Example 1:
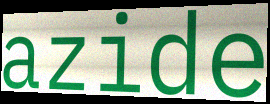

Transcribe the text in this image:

azide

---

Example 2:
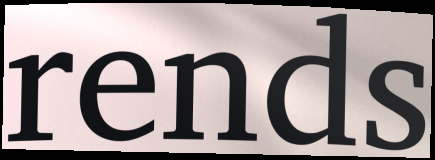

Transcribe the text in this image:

rends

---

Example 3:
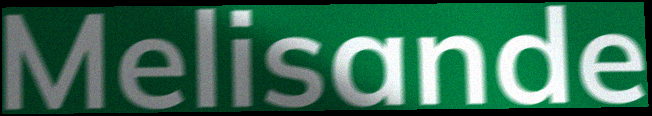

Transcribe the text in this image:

Melisande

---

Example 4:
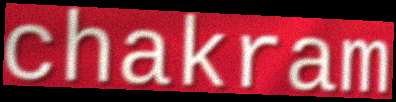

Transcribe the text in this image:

chakram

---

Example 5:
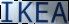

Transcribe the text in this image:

IKEA